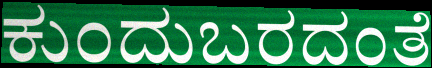
ಕುಂದುಬರದಂತೆ